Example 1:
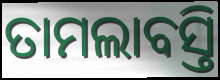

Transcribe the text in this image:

ତାମଲାବସ୍ତି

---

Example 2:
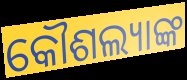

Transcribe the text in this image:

କୌଶଲ୍ୟାଙ୍କ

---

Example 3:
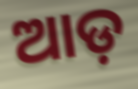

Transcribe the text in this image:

ଆଡ଼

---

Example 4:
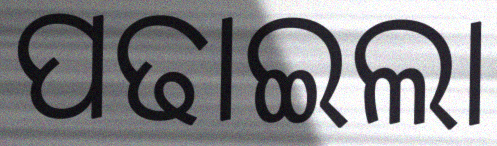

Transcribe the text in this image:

ପଢାଇଲା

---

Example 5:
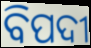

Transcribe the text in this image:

ବିପଦୀ